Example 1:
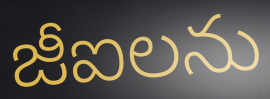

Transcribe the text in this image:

జీఐలను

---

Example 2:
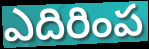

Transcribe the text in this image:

ఎదిరింప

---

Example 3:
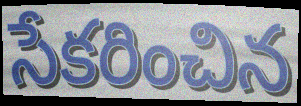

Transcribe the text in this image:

సేకరించిన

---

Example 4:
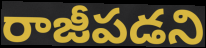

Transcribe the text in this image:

రాజీపడని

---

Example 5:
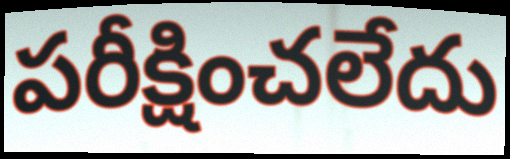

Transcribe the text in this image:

పరీక్షించలేదు